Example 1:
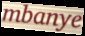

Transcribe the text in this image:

mbanye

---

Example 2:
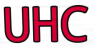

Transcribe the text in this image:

UHC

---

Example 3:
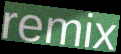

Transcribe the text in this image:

remix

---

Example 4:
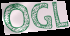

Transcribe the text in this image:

OGL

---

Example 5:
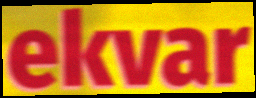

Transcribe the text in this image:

ekvar